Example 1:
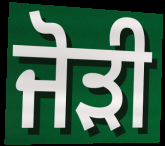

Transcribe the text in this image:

ਜੋਡ਼ੀ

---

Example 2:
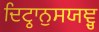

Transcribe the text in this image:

ਦਿਟ੍ਠਾਨੁਸਯਞ੍ਚ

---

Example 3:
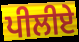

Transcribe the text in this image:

ਪੀਲੀਏ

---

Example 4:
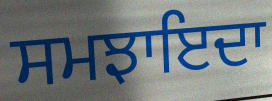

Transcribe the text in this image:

ਸਮਝਾਇਦਾ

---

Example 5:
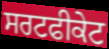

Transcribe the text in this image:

ਸਰਟਫੀਕੇਟ